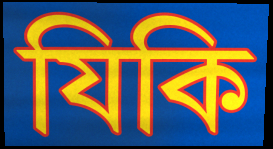
যিকি